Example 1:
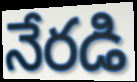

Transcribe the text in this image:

నేరడి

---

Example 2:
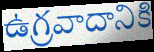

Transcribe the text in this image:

ఉగ్రవాదానికి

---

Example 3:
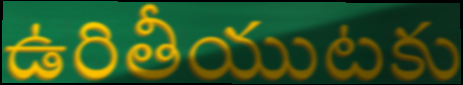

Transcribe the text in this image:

ఉరితీయుటకు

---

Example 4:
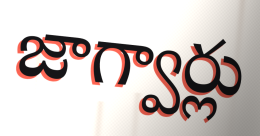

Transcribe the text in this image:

జాగ్వార్లు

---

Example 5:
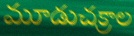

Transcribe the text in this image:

మూడుచక్రాల